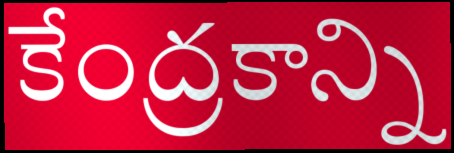
కేంద్రకాన్ని